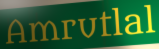
Amrutlal